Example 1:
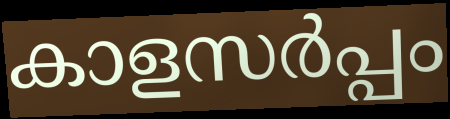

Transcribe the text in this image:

കാളസർപ്പം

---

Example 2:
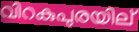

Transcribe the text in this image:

വിറകുപുരയില്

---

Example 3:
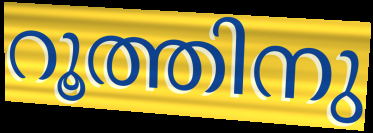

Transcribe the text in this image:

റൂത്തിനു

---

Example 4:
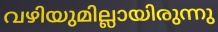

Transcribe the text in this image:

വഴിയുമില്ലായിരുന്നു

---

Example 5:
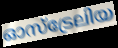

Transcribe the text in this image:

ഓസ്ട്രേലിയ